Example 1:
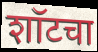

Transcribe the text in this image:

शॉटचा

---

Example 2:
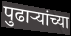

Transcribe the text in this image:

पुढार्‍यांच्या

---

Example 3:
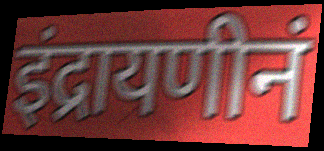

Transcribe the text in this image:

इंद्रायणीनं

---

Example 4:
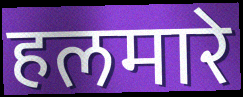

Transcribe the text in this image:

हलमारे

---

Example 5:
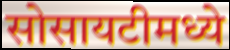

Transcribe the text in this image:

सोसायटीमध्ये